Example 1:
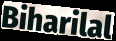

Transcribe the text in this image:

Biharilal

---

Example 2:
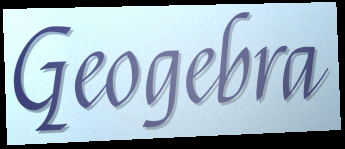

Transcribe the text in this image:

Geogebra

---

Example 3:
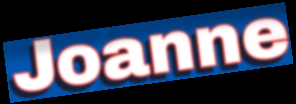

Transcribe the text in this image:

Joanne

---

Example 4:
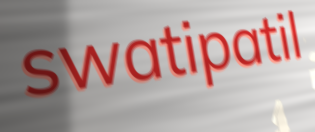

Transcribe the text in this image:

swatipatil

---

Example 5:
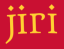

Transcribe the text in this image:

jiri